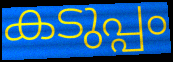
കടുപ്പം